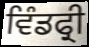
ਵਿੰਡਫ੍ਰੀ